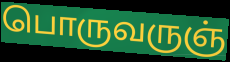
பொருவருஞ்